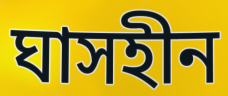
ঘাসহীন